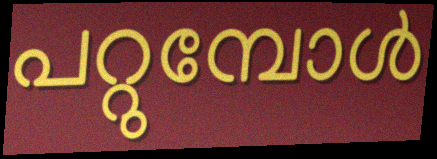
പറ്റുമ്പോൾ